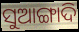
ସୁଆଙ୍ଗାଦି